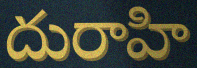
దురాహి